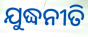
ଯୁଦ୍ଧନୀତି